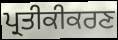
ਪ੍ਰਤੀਕੀਕਰਣ